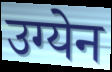
उग्येन